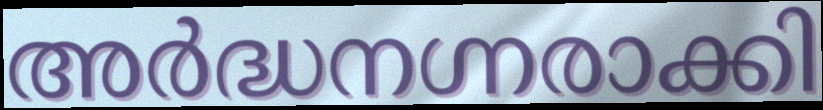
അർദ്ധനഗ്നരാക്കി